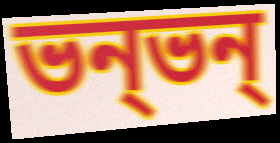
ভন্ভন্